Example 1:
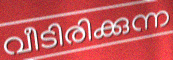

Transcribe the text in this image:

വീടിരിക്കുന്ന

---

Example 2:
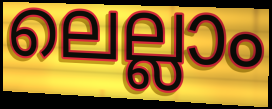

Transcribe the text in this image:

ലെല്ലാം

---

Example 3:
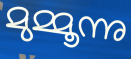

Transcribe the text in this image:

മുമ്മൂന്നു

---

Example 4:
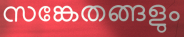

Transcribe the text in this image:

സങ്കേതങ്ങളും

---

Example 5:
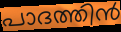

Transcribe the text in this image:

പാദത്തിൻ